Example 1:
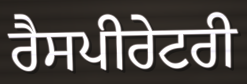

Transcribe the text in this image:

ਰੈਸਪੀਰੇਟਰੀ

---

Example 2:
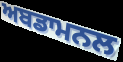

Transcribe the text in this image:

ਅਬਡਾਮਨਲ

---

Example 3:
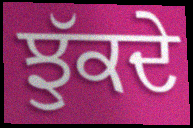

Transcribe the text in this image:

ਝੁੱਕਦੇ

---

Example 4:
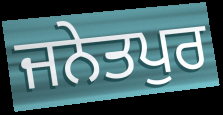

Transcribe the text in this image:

ਜਨੇਤਪੁਰ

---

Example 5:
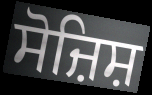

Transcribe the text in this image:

ਸੋਜ਼ਿਸ਼